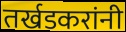
तर्खडकरांनी